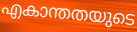
എകാന്തതയുടെ